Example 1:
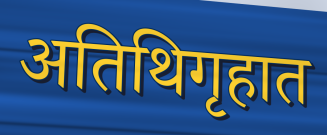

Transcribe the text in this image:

अतिथिगृहात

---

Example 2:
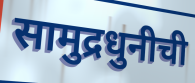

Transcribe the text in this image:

सामुद्रधुनीची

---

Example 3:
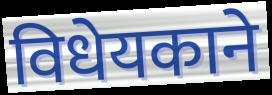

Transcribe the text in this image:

विधेयकाने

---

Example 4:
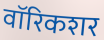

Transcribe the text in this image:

वॉरिकशर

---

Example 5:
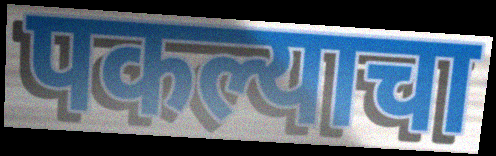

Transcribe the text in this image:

पकल्याचा